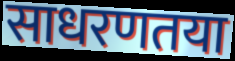
साधरणतया